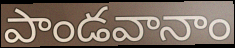
పాండవానాం